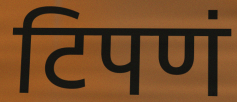
टिपणं